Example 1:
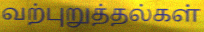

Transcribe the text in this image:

வற்புறுத்தல்கள்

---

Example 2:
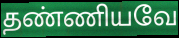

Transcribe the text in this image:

தண்ணியவே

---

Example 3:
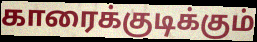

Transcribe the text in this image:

காரைக்குடிக்கும்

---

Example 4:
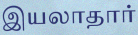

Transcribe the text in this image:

இயலாதார்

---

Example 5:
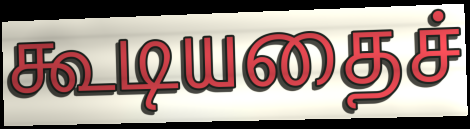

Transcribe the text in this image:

கூடியதைச்